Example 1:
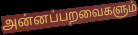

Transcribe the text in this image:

அன்னப்பறவைகளும்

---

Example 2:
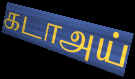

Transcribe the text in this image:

கடாஅய்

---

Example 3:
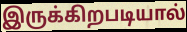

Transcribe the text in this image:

இருக்கிறபடியால்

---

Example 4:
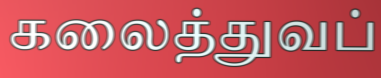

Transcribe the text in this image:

கலைத்துவப்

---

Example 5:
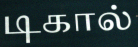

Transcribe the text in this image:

டிகால்